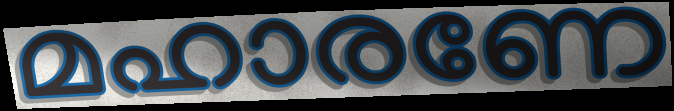
മഹാരണേ